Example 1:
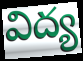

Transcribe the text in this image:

విద్య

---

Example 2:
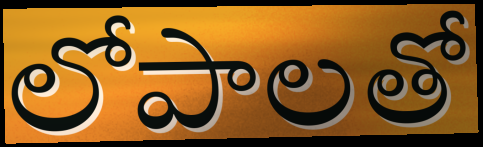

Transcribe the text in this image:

లోపాలతో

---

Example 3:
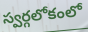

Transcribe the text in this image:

స్వర్గలోకంలో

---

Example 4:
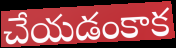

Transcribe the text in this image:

చేయడంకాక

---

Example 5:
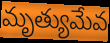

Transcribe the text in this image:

మృత్యుమేవ